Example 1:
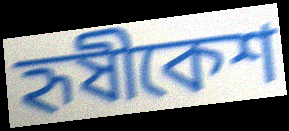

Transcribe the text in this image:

হৃষীকেশ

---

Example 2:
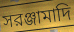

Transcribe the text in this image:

সরঞ্জামাদি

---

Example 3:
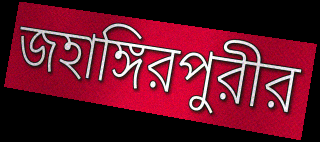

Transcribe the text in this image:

জহাঙ্গিরপুরীর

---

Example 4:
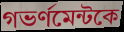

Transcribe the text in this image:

গভর্ণমেন্টকে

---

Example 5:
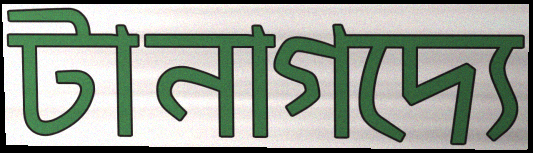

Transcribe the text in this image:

টানাগদ্যে